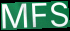
MFS